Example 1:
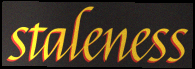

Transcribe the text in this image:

staleness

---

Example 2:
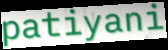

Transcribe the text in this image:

patiyani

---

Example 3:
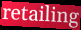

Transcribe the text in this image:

retailing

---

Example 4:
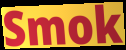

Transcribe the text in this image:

Smok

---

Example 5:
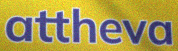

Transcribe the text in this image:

attheva